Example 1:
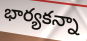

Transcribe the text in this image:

భార్యకన్నా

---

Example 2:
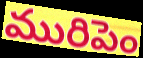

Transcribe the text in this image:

మురిపెం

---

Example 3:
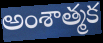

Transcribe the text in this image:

అంశాత్మక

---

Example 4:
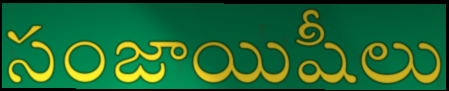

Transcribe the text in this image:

సంజాయిషీలు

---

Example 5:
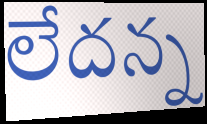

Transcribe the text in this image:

లేదన్న